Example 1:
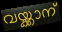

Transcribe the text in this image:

വയ്ക്കാന്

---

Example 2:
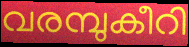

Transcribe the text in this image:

വരമ്പുകീറി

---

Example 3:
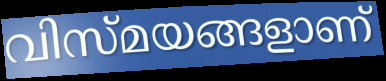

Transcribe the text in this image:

വിസ്മയങ്ങളാണ്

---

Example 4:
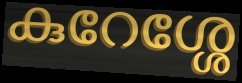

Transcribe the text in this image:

കുറേശ്ശേ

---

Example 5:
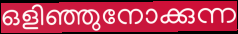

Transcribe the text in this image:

ഒളിഞ്ഞുനോക്കുന്ന